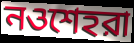
নওশেহরা